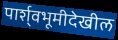
पार्श्वभूमीदेखील